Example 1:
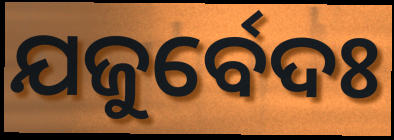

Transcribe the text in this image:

ଯଜୁର୍ବେଦଃ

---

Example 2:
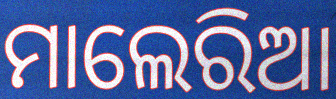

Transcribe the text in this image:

ମାଲେରିଆ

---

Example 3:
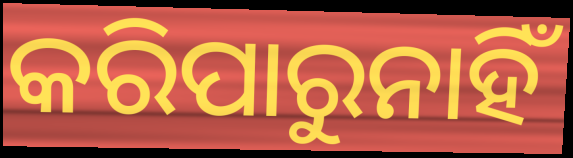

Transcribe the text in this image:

କରିପାରୁନାହିଁ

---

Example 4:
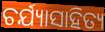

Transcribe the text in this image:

ଚର୍ଯ୍ୟାସାହିତ୍ୟ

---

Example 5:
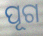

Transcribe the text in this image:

ପୂଗ